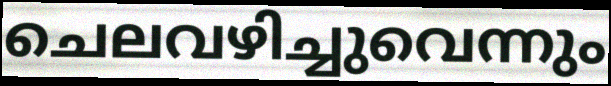
ചെലവഴിച്ചുവെന്നും